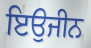
ਇਉਜੀਨ